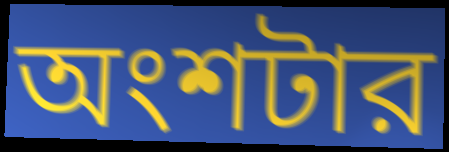
অংশটার